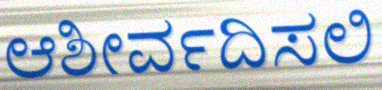
ಆಶೀರ್ವದಿಸಲಿ